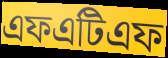
এফএটিএফ